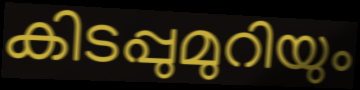
കിടപ്പുമുറിയും